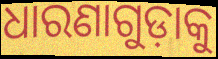
ଧାରଣାଗୁଡ଼ାକୁ